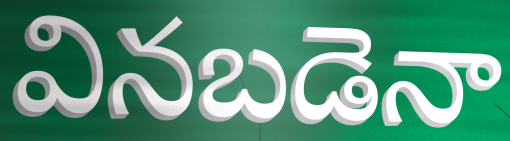
వినబడెనా